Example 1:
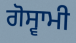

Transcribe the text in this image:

ਗੋਸ੍ਵਾਮੀ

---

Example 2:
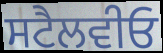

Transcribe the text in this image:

ਸਟੈਲਵੀਓ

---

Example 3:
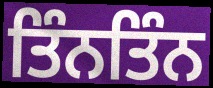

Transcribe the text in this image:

ਤਿੰਨਤਿੰਨ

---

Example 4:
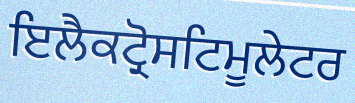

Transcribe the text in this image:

ਇਲੈਕਟ੍ਰੋਸਟਿਮੂਲੇਟਰ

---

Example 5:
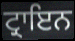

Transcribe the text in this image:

ਟ੍ਰਾਇਨ